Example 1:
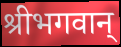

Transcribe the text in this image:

श्रीभगवान्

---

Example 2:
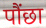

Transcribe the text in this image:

पौंछा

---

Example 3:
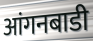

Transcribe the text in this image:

आंगनबाडी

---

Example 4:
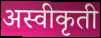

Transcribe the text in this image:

अस्वीकृती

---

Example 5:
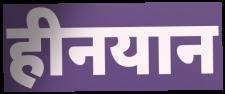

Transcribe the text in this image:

हीनयान